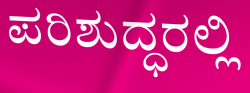
ಪರಿಶುದ್ಧರಲ್ಲಿ